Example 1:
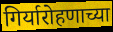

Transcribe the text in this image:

गिर्यारोहणाच्या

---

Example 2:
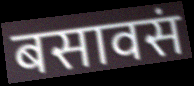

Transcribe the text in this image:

बसावसं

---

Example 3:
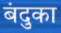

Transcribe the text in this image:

बंदुका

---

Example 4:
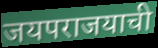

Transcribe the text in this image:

जयपराजयाची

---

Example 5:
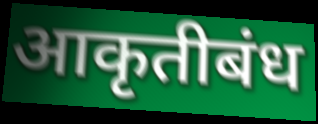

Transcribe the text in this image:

आकृतीबंध